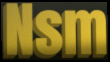
Nsm